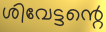
ശിവേട്ടന്റെ